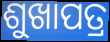
ଶୁଖାପତ୍ର